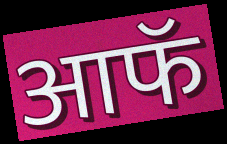
आफॅ